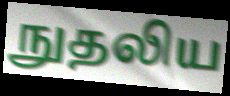
நுதலிய